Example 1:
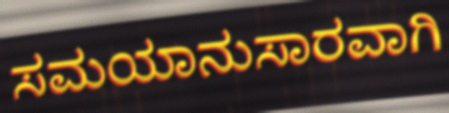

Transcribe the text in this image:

ಸಮಯಾನುಸಾರವಾಗಿ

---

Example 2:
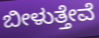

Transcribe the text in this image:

ಬೀಳುತ್ತೇವೆ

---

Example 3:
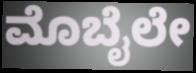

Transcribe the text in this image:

ಮೊಬೈಲೇ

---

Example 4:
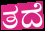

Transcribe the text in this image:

ತದೆ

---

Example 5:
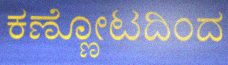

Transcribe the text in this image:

ಕಣ್ಣೋಟದಿಂದ